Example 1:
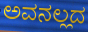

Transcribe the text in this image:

ಅವನಲ್ಲದ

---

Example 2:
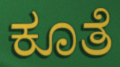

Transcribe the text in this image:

ಕೂತೆ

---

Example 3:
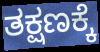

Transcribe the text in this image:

ತಕ್ಷಣಕ್ಕೆ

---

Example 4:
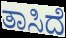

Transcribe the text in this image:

ತಾಸಿದೆ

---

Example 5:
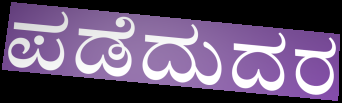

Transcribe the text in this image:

ಪಡೆದುದರ